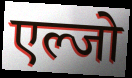
एल्जो